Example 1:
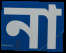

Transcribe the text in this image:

না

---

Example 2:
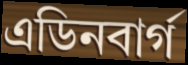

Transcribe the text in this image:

এডিনবাৰ্গ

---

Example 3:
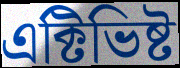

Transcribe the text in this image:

এক্টিভিষ্ট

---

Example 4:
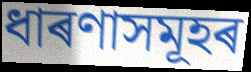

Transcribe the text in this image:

ধাৰণাসমূহৰ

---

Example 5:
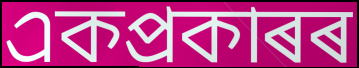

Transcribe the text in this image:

একপ্ৰকাৰৰ